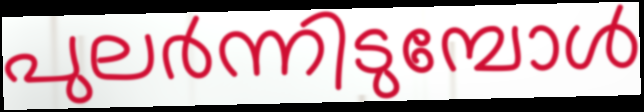
പുലർന്നിടുമ്പോൾ